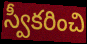
స్వీకరించి